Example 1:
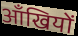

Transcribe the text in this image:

आँखियों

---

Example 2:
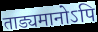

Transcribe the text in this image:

ताड्यमानोऽपि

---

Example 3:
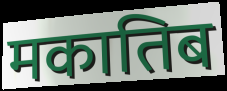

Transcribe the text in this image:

मकातिब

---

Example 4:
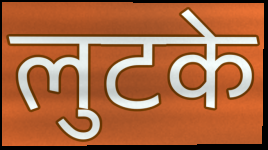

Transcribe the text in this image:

लुटके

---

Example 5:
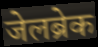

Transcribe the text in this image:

जेलब्रेक